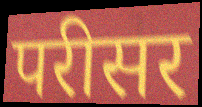
परीसर